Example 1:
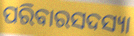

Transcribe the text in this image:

ପରିବାରସଦସ୍ୟା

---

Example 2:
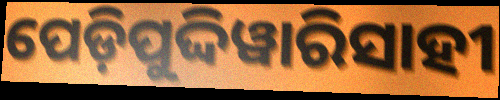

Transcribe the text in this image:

ପେଡ଼ିପୁଦ୍ଦିୱାରିସାହୀ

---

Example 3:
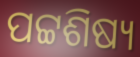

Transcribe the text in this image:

ପଟ୍ଟଶିଷ୍ୟ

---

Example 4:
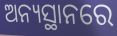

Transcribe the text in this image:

ଅନ୍ୟସ୍ଥାନରେ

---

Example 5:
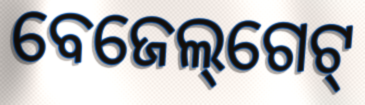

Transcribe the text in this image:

ବେଜେଲ୍‌ଗେଟ୍